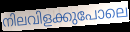
നിലവിളക്കുപോലെ